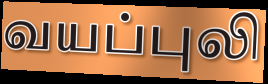
வயப்புலி